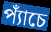
প্যাঁচে